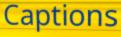
Captions